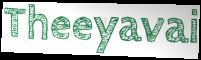
Theeyavai